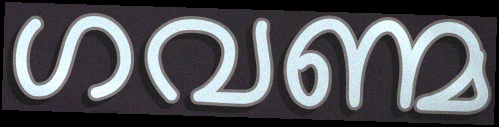
ഗവണ്മ